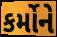
કર્મોને